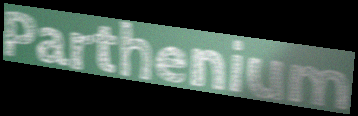
Parthenium